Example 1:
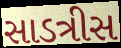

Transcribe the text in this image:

સાડત્રીસ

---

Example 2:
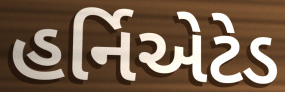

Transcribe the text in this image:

હર્નિએટેડ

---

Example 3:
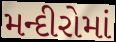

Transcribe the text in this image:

મન્દીરોમાં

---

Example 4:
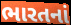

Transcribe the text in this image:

ભારતનાં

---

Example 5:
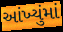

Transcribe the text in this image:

આંખ્યુંમાં